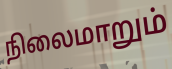
நிலைமாறும்